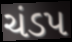
ચંડપ